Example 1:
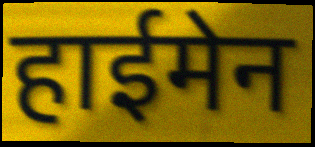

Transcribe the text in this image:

हाईमेन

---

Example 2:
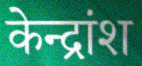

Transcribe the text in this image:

केन्द्रांश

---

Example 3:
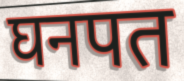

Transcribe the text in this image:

घनपत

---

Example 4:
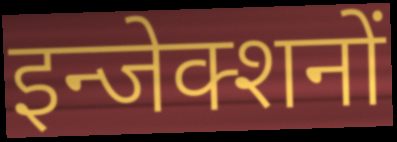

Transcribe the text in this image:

इन्जेक्शनों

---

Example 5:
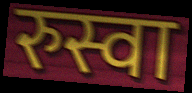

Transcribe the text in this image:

रुस्वा